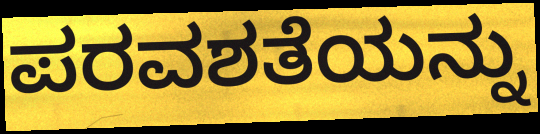
ಪರವಶತೆಯನ್ನು